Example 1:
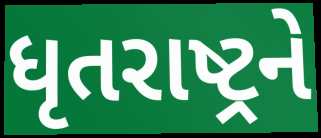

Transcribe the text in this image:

ધૃતરાષ્ટ્રને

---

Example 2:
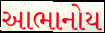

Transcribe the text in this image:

આભાનોય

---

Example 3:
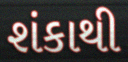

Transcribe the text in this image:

શંકાથી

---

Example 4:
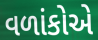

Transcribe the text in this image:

વળાંકોએ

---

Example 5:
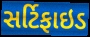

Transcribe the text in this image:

સર્ટિફાઇડ